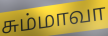
சும்மாவா